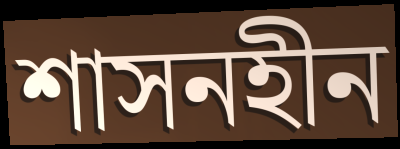
শাসনহীন